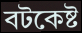
বটকেষ্ট